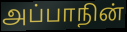
அப்பாநின்